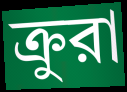
ক্রুরা